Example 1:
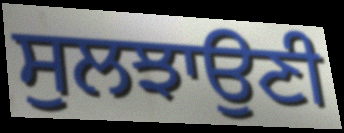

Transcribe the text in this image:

ਸੁਲਝਾਉਣੀ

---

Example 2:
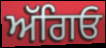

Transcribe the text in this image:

ਅੱਗਿਓ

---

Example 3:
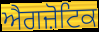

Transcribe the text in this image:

ਐਗਜ਼ੋਟਿਕ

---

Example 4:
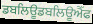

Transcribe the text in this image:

ਡਬਲਿਊਡਬਲਿਊਐੱਫ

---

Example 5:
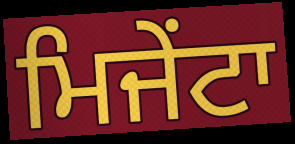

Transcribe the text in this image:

ਮਿਜੇਂਟਾ